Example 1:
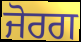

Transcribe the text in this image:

ਜੋਰਗ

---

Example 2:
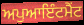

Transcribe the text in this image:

ਅਪੁਆਇੰਟਮੈਂਟ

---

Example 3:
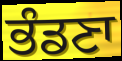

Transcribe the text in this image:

ਭੰਡਣਾ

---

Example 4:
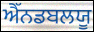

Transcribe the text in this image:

ਐੱਨਡਬਲਯੂ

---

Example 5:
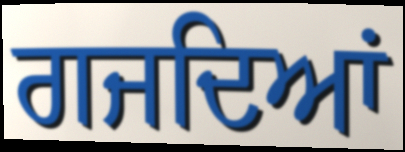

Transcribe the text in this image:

ਗਜਦਿਆਂ